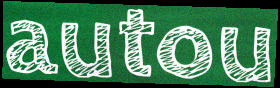
autou